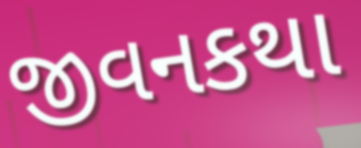
જીવનકથા